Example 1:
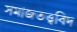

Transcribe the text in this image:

সমাজতত্ত্ববিদ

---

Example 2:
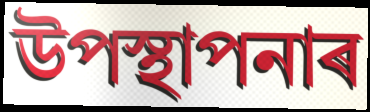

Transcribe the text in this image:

উপস্থাপনাৰ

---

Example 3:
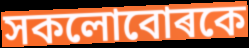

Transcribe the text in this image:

সকলোবোৰকে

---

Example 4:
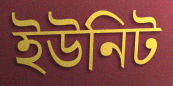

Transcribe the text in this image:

ইউনিট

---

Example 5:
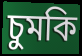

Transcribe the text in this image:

চুমকি